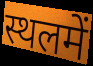
स्थलमें